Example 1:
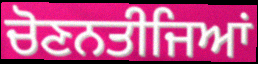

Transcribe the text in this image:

ਚੋਣਨਤੀਜਿਆਂ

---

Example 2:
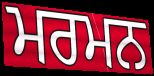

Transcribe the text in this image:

ਮਰਮਨ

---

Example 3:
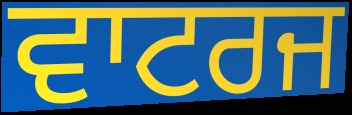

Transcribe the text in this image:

ਵਾਟਰਜ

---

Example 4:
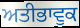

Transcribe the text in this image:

ਅਤੀਭਾਵੁਕ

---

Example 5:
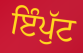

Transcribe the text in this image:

ਇੰਪੁੱਟ